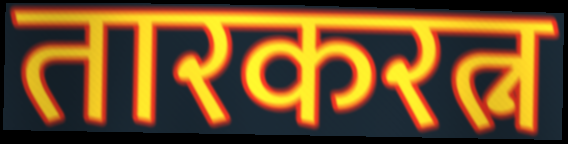
तारकरत्न